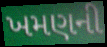
ખમણની